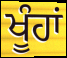
ਖੂੰਹਾਂ